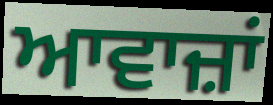
ਆਵਾਜ਼ਾਂ